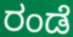
ರಂಡೆ